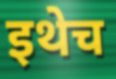
इथेच